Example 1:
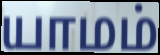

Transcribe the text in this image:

யாமம்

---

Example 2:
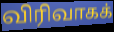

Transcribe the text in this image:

விரிவாகக்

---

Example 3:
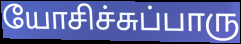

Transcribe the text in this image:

யோசிச்சுப்பாரு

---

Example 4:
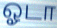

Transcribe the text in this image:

ஓடா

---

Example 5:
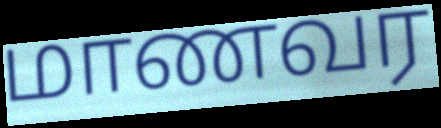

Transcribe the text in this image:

மாணவர